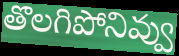
తొలగిపోనివ్వు